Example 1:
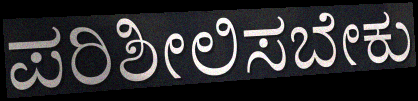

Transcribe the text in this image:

ಪರಿಶೀಲಿಸಬೇಕು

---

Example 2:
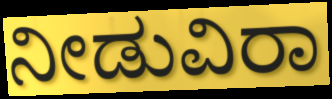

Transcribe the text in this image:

ನೀಡುವಿರಾ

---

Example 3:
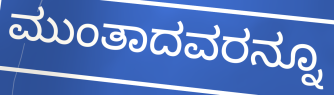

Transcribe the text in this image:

ಮುಂತಾದವರನ್ನೂ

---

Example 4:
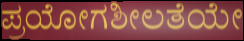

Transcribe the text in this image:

ಪ್ರಯೋಗಶೀಲತೆಯೇ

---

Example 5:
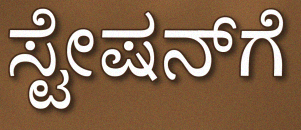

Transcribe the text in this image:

ಸ್ಟೇಷನ್‍ಗೆ